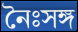
নৈঃসঙ্গ